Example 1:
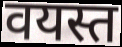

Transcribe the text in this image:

वयस्त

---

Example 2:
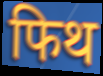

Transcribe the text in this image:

फिथ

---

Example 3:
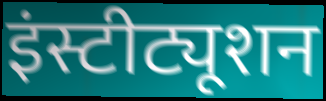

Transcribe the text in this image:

इंस्‍टीट्यूशन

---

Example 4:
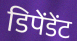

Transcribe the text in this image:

डिपेंडेंट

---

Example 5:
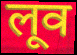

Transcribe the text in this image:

लूव